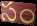
సం